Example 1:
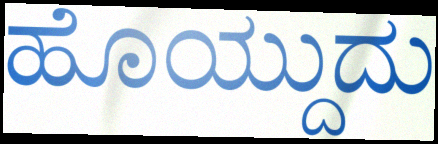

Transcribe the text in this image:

ಹೊಯ್ದುದು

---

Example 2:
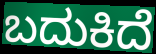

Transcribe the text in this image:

ಬದುಕಿದೆ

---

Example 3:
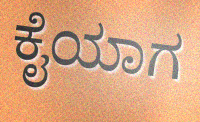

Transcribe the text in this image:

ಕೈಯಾಗ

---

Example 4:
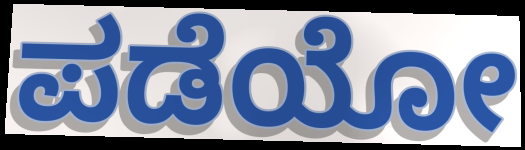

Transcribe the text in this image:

ಪಡೆಯೋ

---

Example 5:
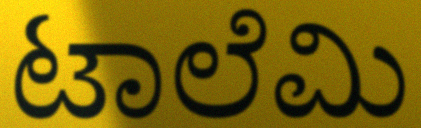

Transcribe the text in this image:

ಟಾಲೆಮಿ